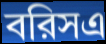
বরিসএ